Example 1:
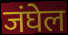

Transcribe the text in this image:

जंघेल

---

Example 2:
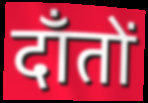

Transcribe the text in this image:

दाँतों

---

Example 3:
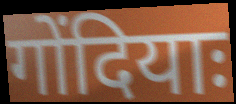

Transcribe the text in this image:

गोंदियाः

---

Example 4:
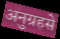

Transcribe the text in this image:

अनुग्रहसे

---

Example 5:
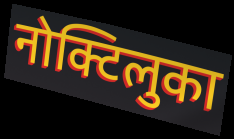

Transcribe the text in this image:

नोक्टिलुका